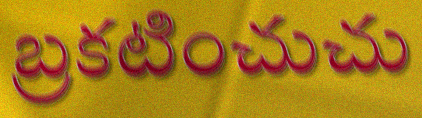
బ్రకటించుచు